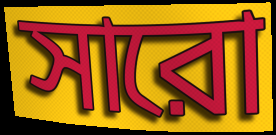
সারো